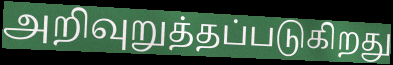
அறிவுறுத்தப்படுகிறது